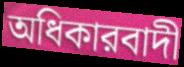
অধিকারবাদী